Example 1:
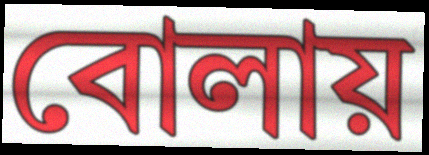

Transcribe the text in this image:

বোলায়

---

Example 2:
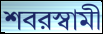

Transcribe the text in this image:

শবরস্বামী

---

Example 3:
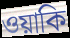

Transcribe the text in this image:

ওয়াকি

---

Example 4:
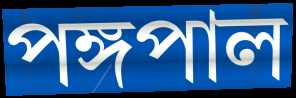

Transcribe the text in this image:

পঙ্গপাল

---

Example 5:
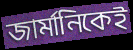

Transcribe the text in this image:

জার্মানিকেই